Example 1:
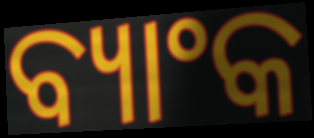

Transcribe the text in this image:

ବ୍ୟାଂକ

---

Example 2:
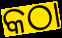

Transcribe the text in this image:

କଠା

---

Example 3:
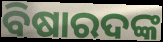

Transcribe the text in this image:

ବିଷାରଦଙ୍କ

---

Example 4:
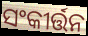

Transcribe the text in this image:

ସଂକୀର୍ତ୍ତନ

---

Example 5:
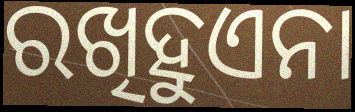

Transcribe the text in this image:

ରଖିହୁଏନା